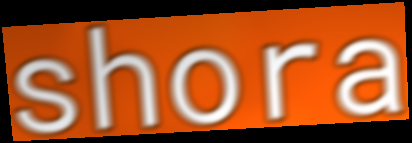
shora